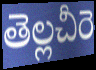
తెల్లచీరె